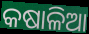
କଷାଳିଆ